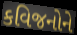
કવિજનોને